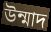
উন্মাদ